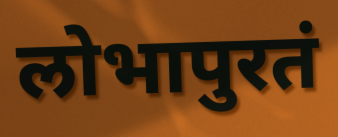
लोभापुरतं